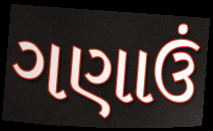
ગણાઉં